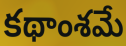
కథాంశమే